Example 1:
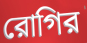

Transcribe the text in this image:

রোগির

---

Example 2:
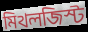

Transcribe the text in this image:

মিথলজিস্ট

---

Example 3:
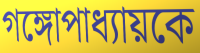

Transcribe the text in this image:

গঙ্গোপাধ্যায়কে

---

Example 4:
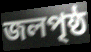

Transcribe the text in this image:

জলপৃষ্ঠ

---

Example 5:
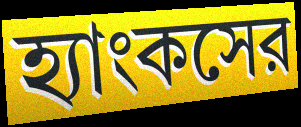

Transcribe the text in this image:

হ্যাংকসের